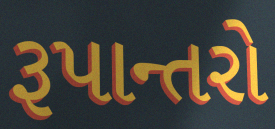
રૂપાન્તરો